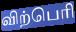
விற்பெரி